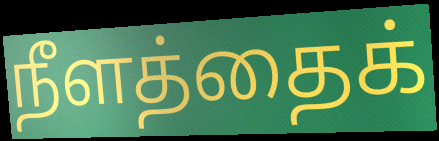
நீளத்தைக்